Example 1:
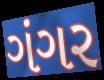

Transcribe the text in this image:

ગંગર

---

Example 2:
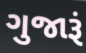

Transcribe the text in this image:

ગુજારૂં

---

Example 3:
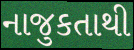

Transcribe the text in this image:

નાજુકતાથી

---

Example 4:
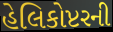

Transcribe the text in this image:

હેલિકોપ્ટરની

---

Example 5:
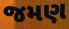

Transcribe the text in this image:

જમણ